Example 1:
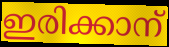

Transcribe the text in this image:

ഇരിക്കാന്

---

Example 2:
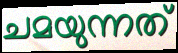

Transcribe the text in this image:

ചമയുന്നത്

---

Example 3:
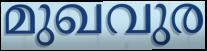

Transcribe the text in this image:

മുഖവുര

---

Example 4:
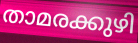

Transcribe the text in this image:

താമരക്കുഴി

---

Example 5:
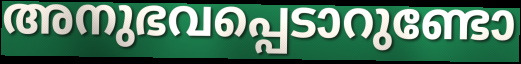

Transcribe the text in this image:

അനുഭവപ്പെടാറുണ്ടോ